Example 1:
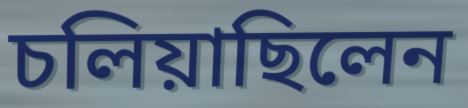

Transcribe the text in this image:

চলিয়াছিলেন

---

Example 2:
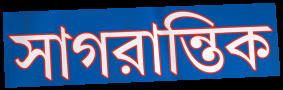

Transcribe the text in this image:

সাগরান্তিক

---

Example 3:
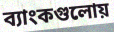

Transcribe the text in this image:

ব্যাংকগুলোয়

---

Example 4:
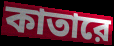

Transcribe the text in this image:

কাতারে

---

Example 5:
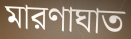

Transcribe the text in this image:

মারণাঘাত